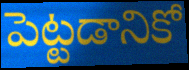
పెట్టడానికో